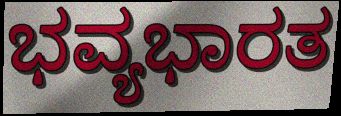
ಭವ್ಯಭಾರತ